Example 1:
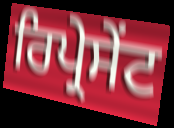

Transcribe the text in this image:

ਰਿਪ੍ਰੇਸੇੰਟ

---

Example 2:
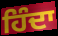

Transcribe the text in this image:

ਹਿੰਦਾ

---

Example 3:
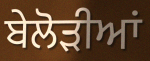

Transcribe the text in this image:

ਬੇਲੋੜੀਆਂ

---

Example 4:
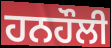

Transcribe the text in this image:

ਹਨਹੌਲੀ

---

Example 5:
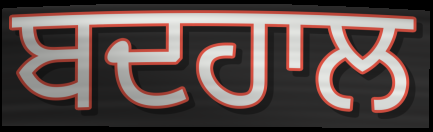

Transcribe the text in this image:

ਬਦਹਾਲ